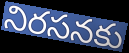
నిరసనకు